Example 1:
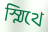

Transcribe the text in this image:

স্মিথে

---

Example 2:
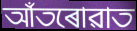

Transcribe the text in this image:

আঁতৰোৱাত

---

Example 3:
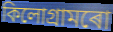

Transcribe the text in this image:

কিলোগ্ৰামৰো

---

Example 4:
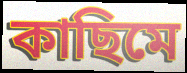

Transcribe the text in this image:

কাছিমে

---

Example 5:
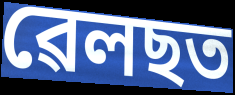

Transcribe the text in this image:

ৱেলছত